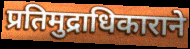
प्रतिमुद्राधिकाराने